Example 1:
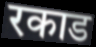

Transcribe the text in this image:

रकाड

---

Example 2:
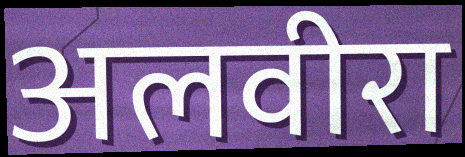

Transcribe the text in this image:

अलवीरा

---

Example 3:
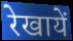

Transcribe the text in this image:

रेखायें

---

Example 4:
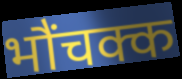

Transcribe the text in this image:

भौंचक्क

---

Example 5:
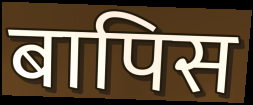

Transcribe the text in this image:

बापिस